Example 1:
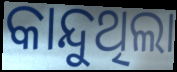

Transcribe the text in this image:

କାନ୍ଦୁଥିଲା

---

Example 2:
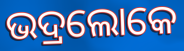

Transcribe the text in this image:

ଭଦ୍ରଲୋକେ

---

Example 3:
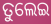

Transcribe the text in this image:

ତୁଲେଇ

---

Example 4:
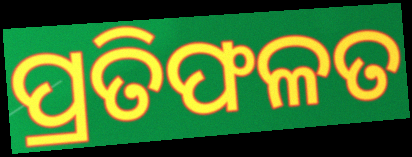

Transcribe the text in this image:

ପ୍ରତିଫଳତ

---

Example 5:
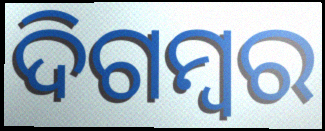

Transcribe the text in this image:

ଦିଗମ୍ୱର